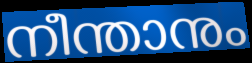
നീന്താനും